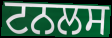
ਟਨਲਸ